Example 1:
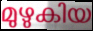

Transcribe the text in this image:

മുഴുകിയ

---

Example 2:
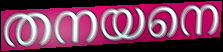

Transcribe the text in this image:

തനയനെ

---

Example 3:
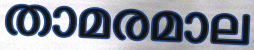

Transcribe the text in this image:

താമരമാല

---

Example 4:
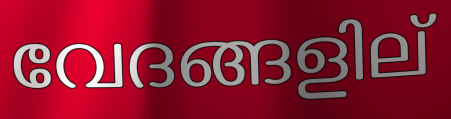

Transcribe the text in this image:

വേദങ്ങളില്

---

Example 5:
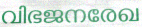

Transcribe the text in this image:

വിഭജനരേഖ